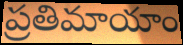
ప్రతిమాయాం